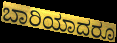
ಬಾರಿಯಾದರೂ